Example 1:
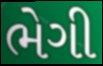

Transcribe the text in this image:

ભેગી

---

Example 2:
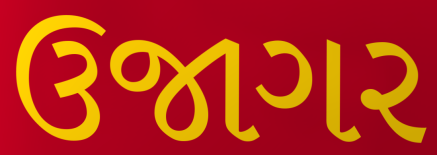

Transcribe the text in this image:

ઉજાગર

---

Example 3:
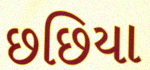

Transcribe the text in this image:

છછિયા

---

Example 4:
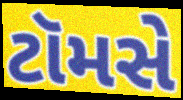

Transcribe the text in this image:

ટૉમસે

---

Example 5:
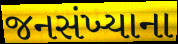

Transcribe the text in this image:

જનસંખ્યાના